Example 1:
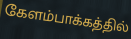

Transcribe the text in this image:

கேளம்பாக்கத்தில்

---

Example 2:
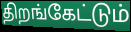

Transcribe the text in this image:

திறங்கேட்டும்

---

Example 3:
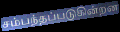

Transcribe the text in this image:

சம்பந்தப்படுகின்றன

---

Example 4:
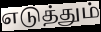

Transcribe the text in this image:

எடுத்தும்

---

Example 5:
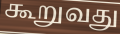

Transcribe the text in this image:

கூறுவது